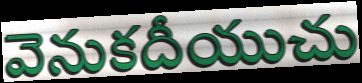
వెనుకదీయుచు